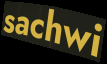
sachwi